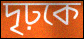
দৃঢ়কে